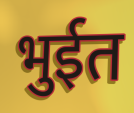
भुईत